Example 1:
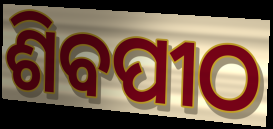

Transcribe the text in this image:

ଶିବପୀଠ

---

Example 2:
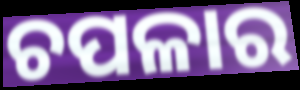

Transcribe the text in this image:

ଚପଳାର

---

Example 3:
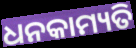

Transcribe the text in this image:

ଧନକାମ୍ୟତି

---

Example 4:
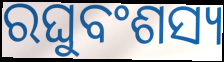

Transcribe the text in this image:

ରଘୁବଂଶସ୍ୟ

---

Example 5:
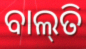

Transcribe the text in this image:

ବାଲ୍‌ତି